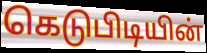
கெடுபிடியின்